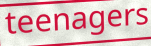
teenagers